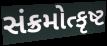
સંક્રમોત્કૃષ્ટ